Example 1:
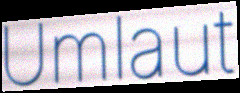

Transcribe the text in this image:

Umlaut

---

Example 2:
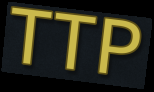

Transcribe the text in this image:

TTP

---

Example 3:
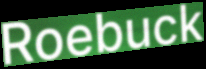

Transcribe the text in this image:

Roebuck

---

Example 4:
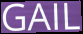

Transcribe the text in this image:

GAIL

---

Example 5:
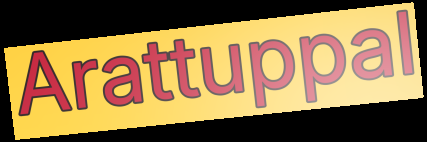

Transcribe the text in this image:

Arattuppal